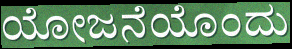
ಯೋಜನೆಯೊಂದು